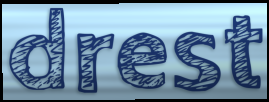
drest